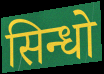
सिन्धो